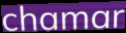
chamar